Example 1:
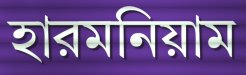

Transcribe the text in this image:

হারমনিয়াম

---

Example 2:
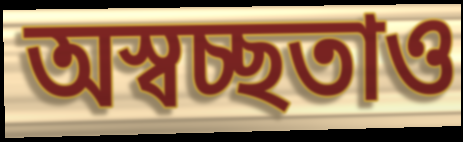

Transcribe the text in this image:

অস্বচ্ছতাও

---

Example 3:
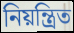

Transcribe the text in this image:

নিয়ন্ত্রিত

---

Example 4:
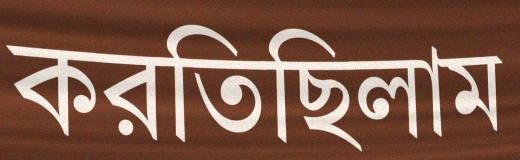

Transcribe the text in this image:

করতিছিলাম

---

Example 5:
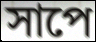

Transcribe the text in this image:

সাপে